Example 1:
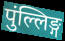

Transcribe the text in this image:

पुंल्लिङ्ग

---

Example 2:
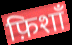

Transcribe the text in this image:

फ़िशाँ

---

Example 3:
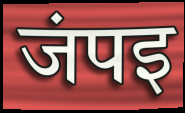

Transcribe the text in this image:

जंपइ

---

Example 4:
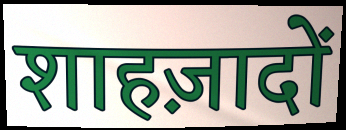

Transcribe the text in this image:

शाहज़ादों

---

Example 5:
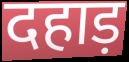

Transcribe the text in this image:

दहाड़